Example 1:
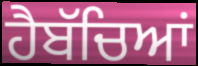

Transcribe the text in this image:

ਹੈਬੱਚਿਆਂ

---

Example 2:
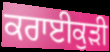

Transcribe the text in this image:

ਕਰਾਈਕੁੜੀ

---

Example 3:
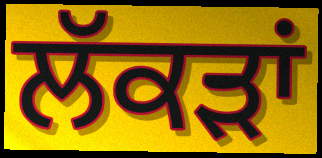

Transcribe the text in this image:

ਲੱਕੜਾਂ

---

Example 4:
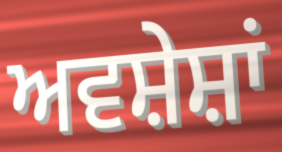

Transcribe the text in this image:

ਅਵਸ਼ੇਸ਼ਾਂ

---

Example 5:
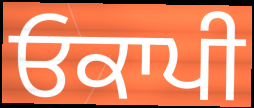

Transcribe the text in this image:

ਓਕਾਪੀ